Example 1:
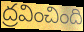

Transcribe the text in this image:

ద్రవించింది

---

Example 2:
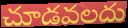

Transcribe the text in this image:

చూడవలదు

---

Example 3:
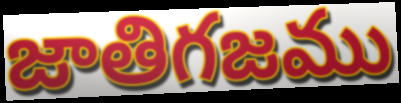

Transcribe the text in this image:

జాతిగజము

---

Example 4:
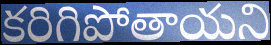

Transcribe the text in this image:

కరిగిపోతాయని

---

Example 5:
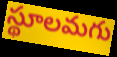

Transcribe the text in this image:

స్థూలమగు